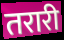
तरारी